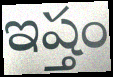
ఇష్తం